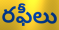
రఫీలు